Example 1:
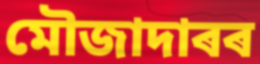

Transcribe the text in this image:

মৌজাদাৰৰ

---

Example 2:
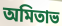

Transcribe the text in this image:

অমিতাভ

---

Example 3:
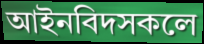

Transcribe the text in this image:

আইনবিদসকলে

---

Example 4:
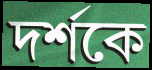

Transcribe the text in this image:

দৰ্শকে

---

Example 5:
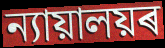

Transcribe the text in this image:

ন্যায়ালয়ৰ